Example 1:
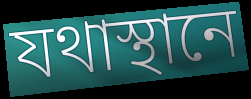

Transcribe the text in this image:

যথাস্থানে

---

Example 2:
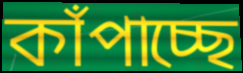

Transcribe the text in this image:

কাঁপাচ্ছে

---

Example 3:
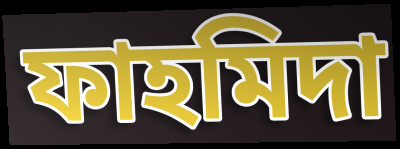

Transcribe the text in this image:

ফাহমিদা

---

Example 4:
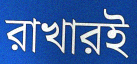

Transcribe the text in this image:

রাখারই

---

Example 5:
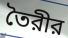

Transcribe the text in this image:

তৈরীর